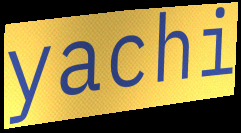
yachi